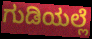
ಗುಡಿಯಲ್ಲೆ